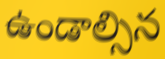
ఉండాల్సిన